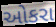
ઓકરા